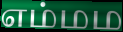
எம்மம